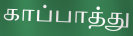
காப்பாத்து